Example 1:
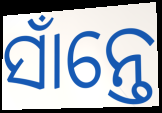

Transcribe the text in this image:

ସାଁନ୍ତେ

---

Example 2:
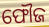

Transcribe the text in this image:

ଫୌଜ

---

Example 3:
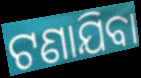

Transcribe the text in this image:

ଟଣାଯିବା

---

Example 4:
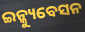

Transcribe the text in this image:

ଇନ୍କ୍ୟୁବେସନ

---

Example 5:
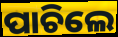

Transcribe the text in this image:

ପାଚିଲେ